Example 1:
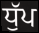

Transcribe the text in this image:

ਧੁੱਪ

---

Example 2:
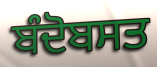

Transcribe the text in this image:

ਬੰਦੋਬਸਤ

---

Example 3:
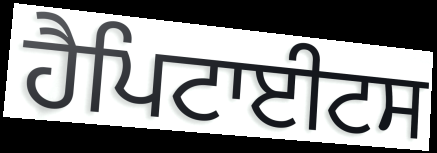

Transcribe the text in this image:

ਹੈਪਿਟਾਈਟਸ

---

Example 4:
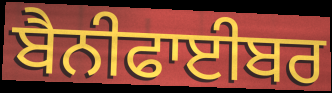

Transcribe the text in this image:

ਬੈਨੀਫਾਈਬਰ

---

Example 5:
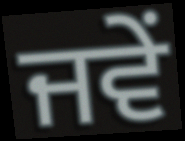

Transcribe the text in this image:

ਜਵੇਂ